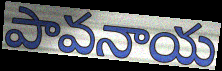
పావనాయ